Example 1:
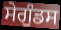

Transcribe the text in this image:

ਸੇਗੁੰਡਸ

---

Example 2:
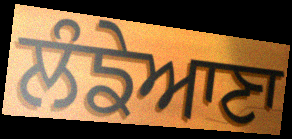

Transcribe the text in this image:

ਲੰਙੇਆਣਾ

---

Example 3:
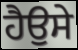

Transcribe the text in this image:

ਹੈਉਸੇ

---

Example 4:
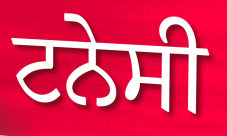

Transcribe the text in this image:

ਟਨੇਸੀ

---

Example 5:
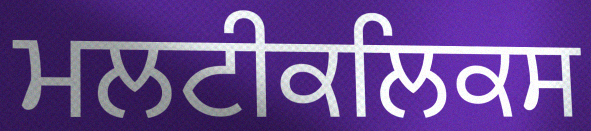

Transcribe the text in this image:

ਮਲਟੀਕਲਿਕਸ